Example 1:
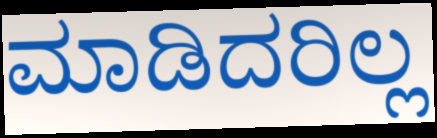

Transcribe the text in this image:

ಮಾಡಿದರಿಲ್ಲ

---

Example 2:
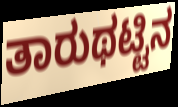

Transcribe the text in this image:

ತಾರುಥಟ್ಟಿನ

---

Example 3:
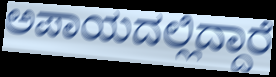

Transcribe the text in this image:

ಅಪಾಯದಲ್ಲಿದ್ದಾರೆ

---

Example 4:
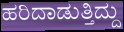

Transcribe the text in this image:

ಹರಿದಾಡುತ್ತಿದ್ದು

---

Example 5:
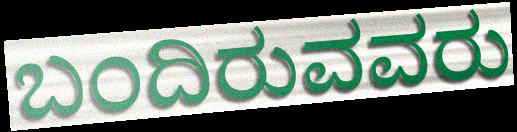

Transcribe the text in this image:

ಬಂದಿರುವವರು